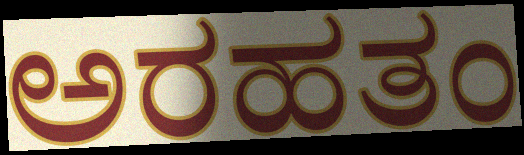
ಅರಹತಂ